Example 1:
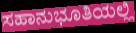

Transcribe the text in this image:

ಸಹಾನುಭೂತಿಯಲ್ಲಿ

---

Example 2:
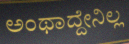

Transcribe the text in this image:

ಅಂಥಾದ್ದೇನಿಲ್ಲ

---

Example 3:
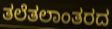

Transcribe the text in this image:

ತಲೆತಲಾಂತರದ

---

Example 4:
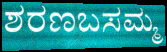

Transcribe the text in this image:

ಶರಣಬಸಮ್ಮ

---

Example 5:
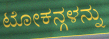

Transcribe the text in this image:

ಟೋಕನ್ಗಳನ್ನು